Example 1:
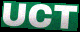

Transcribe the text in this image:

UCT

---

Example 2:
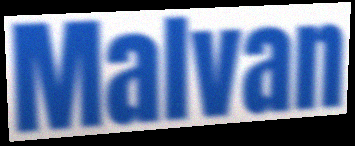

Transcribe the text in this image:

Malvan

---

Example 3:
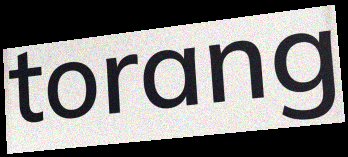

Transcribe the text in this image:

torang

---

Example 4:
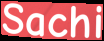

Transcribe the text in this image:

Sachi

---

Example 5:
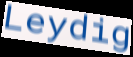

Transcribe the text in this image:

Leydig